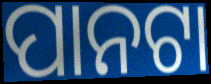
ପାନଟା